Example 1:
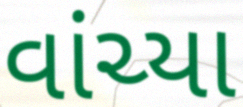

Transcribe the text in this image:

વાંચ્યા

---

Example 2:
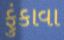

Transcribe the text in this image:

ફુંકાવા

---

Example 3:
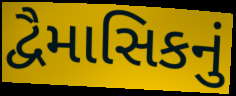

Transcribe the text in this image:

દ્વૈમાસિકનું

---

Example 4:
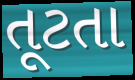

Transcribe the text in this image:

તૂટતા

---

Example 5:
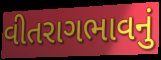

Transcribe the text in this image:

વીતરાગભાવનું